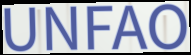
UNFAO